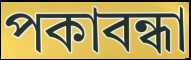
পকাবন্ধা